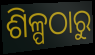
ଶିଳ୍ପଠାରୁ